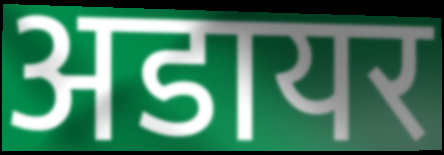
अडायर